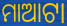
ମାଆଟା